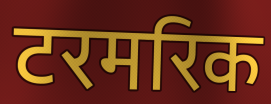
टरमरिक